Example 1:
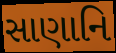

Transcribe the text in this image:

સાણાનિ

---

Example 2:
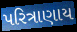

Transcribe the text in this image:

પરિત્રાણાય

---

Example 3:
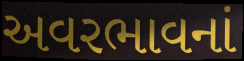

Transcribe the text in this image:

અવરભાવનાં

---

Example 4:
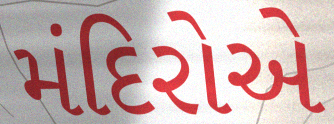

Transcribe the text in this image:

મંદિરોએ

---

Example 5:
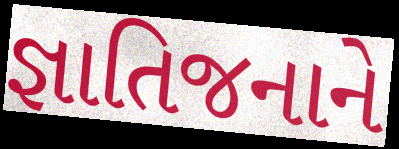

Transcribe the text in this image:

જ્ઞાતિજનાને